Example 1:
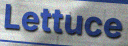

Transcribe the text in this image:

Lettuce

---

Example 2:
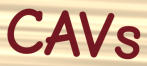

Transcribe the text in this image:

CAVs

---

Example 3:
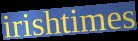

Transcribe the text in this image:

irishtimes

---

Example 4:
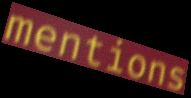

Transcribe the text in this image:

mentions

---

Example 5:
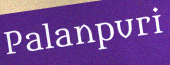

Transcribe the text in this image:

Palanpuri